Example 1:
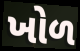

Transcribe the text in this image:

ખોળ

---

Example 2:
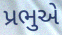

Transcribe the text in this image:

પ્રભુએ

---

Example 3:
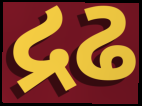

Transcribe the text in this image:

દ્રઢ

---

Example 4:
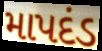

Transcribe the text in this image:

માપદંડ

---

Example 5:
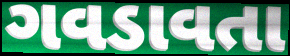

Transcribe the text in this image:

ગવડાવતા